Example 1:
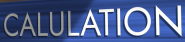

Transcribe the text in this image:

CALULATION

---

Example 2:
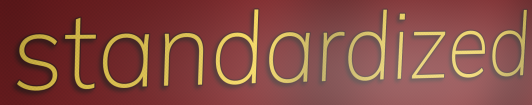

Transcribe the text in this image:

standardized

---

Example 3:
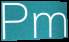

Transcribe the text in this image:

Pm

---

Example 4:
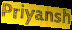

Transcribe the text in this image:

Priyansh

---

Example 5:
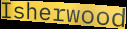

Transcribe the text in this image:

Isherwood